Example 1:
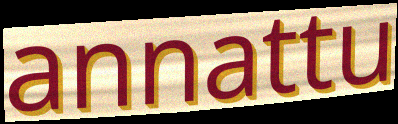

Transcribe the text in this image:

annattu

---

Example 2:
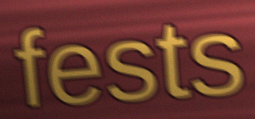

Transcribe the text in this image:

fests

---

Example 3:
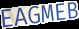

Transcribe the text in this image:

EAGMEB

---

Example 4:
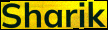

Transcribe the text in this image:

Sharik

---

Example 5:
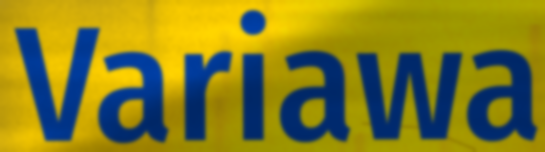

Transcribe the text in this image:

Variawa